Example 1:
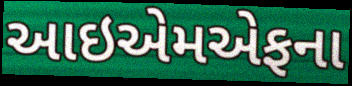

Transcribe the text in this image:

આઇએમએફના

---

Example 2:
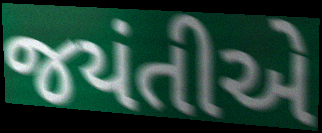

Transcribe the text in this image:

જયંતીએ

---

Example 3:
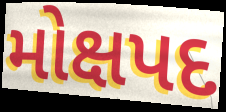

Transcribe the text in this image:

મોક્ષપદ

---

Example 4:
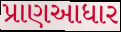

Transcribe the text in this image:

પ્રાણઆધાર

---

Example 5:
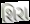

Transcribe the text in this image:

શિરા